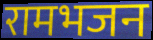
रामभजन